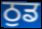
ਠੁਡ